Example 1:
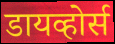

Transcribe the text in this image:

डायव्होर्स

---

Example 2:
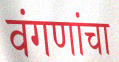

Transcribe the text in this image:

वंगणांचा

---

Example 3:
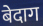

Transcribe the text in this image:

बेदाग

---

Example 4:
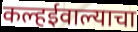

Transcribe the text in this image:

कल्हईवाल्याचा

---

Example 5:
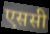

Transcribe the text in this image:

एससी